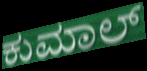
ಕುಮಾಲ್